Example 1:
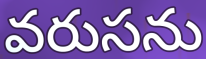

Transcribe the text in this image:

వరుసను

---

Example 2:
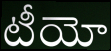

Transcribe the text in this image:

టీయో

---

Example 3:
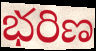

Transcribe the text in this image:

భరిణ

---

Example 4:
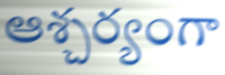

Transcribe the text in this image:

ఆశ్చర్యంగా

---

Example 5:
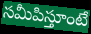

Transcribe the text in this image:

సమీపిస్తూంటే